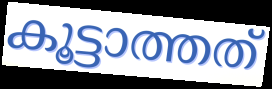
കൂട്ടാത്തത്